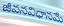
జీవనవిధానమే